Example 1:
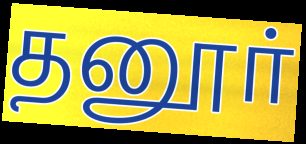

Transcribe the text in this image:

தனூர்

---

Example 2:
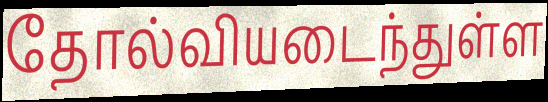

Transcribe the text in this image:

தோல்வியடைந்துள்ள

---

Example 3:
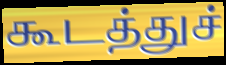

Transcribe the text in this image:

கூடத்துச்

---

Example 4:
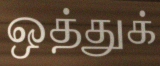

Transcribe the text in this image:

ஒத்துக்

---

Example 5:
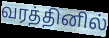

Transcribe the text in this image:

வரத்தினில்